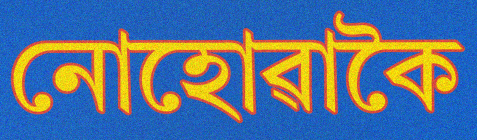
নোহোৱাকৈ